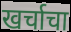
खर्चाचा